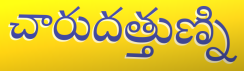
చారుదత్తుణ్ని